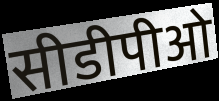
सीडीपीओ